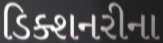
ડિક્શનરીના